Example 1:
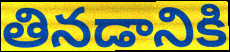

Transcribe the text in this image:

తినడానికి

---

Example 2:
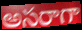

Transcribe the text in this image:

అసరాగా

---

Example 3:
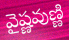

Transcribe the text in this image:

వైష్ణవుణ్ణి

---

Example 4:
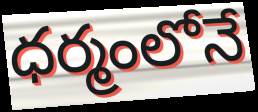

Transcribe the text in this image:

ధర్మంలోనే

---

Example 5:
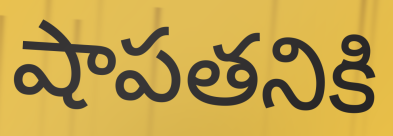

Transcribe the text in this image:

షాపతనికి